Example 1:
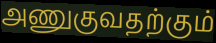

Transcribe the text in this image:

அணுகுவதற்கும்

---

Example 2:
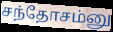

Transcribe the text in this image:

சந்தோசம்னு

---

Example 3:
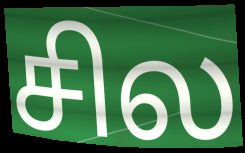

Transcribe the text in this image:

சில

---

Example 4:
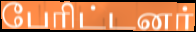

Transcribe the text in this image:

பேரிட்டனர்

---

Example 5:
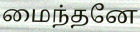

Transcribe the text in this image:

மைந்தனே